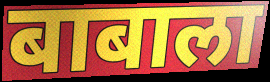
बाबाला